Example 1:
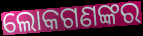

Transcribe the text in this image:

ଲୋକଗଣଙ୍କର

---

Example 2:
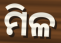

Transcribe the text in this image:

ମିଳ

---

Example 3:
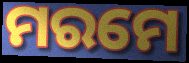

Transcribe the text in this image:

ମରମେ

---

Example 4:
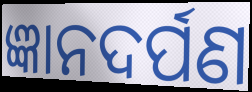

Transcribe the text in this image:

ଜ୍ଞାନଦର୍ପଣ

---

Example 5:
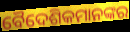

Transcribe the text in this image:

ବୈଦେଶିକମାନଙ୍କର